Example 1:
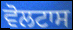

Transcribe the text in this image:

ਵੋਲਟਾਸ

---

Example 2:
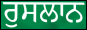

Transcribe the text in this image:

ਰੁਸਲਾਨ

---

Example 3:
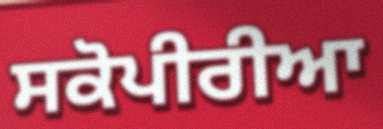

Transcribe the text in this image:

ਸਕੋਪੀਰੀਆ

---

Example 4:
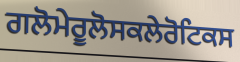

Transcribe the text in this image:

ਗਲੋਮੇਰੂਲੋਸਕਲੇਰੋਟਿਕਸ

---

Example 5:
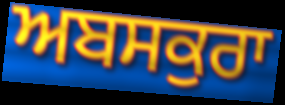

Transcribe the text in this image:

ਅਬਸਕੁਰਾ